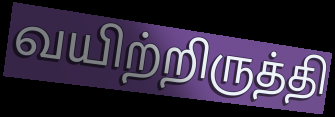
வயிற்றிருத்தி